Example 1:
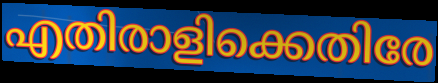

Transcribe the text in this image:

എതിരാളിക്കെതിരേ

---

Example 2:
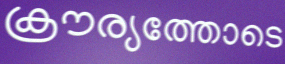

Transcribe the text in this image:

ക്രൗര്യത്തോടെ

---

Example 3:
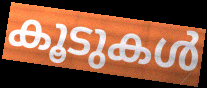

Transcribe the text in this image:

കൂടുകൾ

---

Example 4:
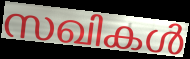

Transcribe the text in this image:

സഖികൾ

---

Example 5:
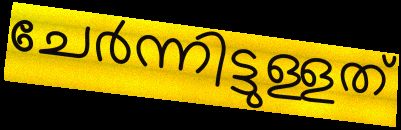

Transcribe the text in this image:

ചേർന്നിട്ടുള്ളത്